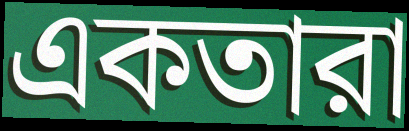
একতারা